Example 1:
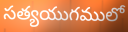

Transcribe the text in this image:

సత్యయుగములో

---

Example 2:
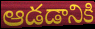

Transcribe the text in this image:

ఆడడానికి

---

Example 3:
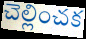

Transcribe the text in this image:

చెల్లించక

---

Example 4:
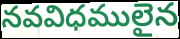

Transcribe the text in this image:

నవవిధములైన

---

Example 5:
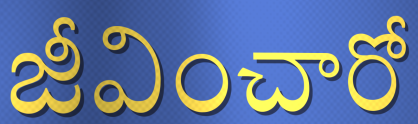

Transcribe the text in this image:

జీవించారో